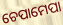
ଚେପାମେପା